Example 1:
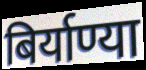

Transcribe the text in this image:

बिर्याण्या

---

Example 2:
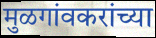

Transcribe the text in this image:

मुळगांवकरांच्या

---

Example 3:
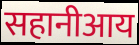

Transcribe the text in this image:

सहानीआय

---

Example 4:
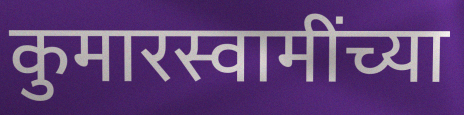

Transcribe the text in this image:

कुमारस्वामींच्या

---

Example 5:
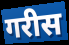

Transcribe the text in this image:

गरीस